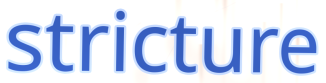
stricture